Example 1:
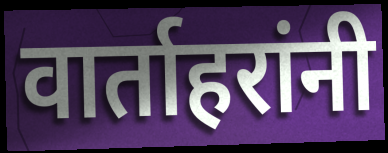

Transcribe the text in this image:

वार्ताहरांनी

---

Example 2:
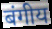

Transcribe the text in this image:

बंगीय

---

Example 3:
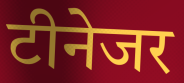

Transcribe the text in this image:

टीनेजर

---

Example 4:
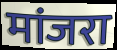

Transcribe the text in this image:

मांजरा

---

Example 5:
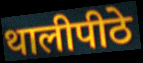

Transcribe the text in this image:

थालीपीठे